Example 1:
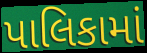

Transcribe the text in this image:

પાલિકામાં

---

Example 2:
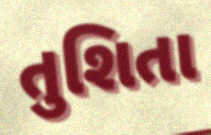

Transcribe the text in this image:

તુશિતા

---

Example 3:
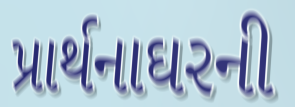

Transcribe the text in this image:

પ્રાર્થનાઘરની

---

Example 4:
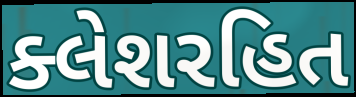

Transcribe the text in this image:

ક્લેશરહિત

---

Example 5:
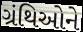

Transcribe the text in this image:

ગ્રંથિઓને